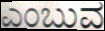
ಎಂಬುವ